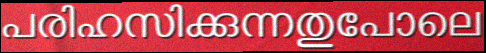
പരിഹസിക്കുന്നതുപോലെ